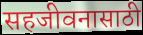
सहजीवनासाठी